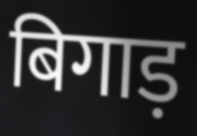
बिगाड़